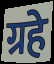
ग्रहे